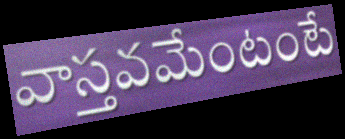
వాస్తవమేంటంటే